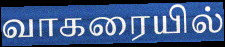
வாகரையில்